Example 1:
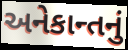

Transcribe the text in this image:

અનેકાન્તનું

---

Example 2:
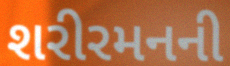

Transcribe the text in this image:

શરીરમનની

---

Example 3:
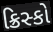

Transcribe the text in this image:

ક્રિસ્કો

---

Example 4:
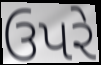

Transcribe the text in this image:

ઉપરે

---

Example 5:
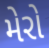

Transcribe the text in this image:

મેરો